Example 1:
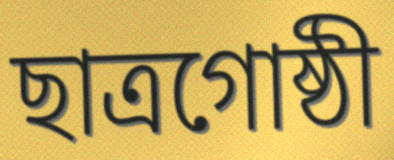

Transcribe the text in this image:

ছাত্রগোষ্ঠী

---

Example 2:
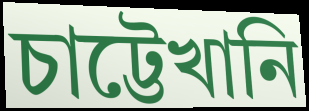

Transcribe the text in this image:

চাট্টেখানি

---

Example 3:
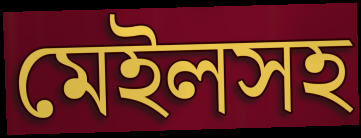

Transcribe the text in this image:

মেইলসহ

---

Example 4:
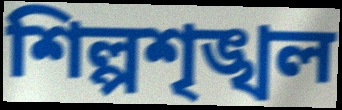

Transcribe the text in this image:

শিল্পশৃঙ্খল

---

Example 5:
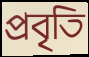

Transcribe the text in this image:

প্রবৃতি